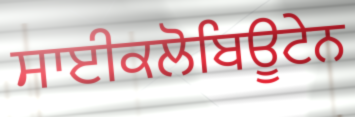
ਸਾਈਕਲੋਬਿਊਟੇਨ